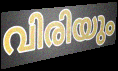
വിരിയും